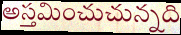
అస్తమించుచున్నది